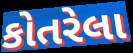
કોતરેલા